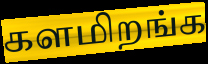
களமிறங்க